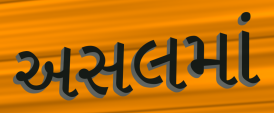
અસલમાં